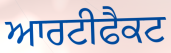
ਆਰਟੀਫੈਕਟ